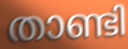
താണ്ടി